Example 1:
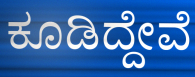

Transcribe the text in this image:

ಕೂಡಿದ್ದೇವೆ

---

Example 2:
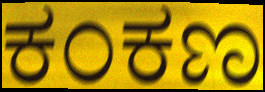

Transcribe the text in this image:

ಕಂಕಣ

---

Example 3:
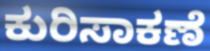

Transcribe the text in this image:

ಕುರಿಸಾಕಣೆ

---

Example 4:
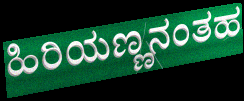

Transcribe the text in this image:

ಹಿರಿಯಣ್ಣನಂತಹ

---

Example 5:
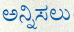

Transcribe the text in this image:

ಅನ್ನಿಸಲು